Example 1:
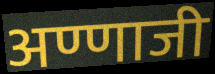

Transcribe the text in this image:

अण्णाजी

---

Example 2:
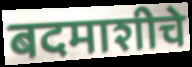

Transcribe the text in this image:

बदमाशीचे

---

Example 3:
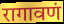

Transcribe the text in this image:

रागावणं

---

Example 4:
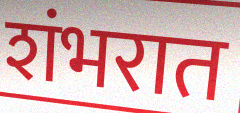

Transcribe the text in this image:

शंभरात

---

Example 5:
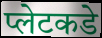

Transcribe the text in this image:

प्लेटकडे